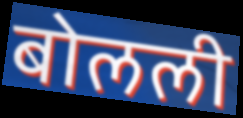
बोलली